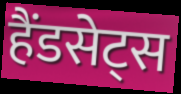
हैंडसेट्स